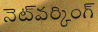
నెట్‌వర్కింగ్